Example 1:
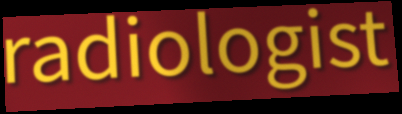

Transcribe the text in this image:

radiologist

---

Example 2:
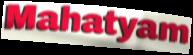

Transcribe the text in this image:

Mahatyam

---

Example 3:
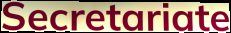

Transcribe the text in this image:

Secretariate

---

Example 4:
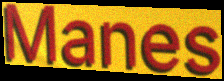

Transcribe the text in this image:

Manes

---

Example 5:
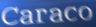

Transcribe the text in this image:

Caraco